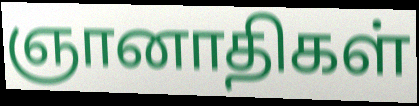
ஞானாதிகள்